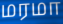
மரமா